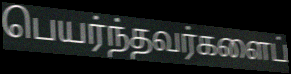
பெயர்ந்தவர்களைப்